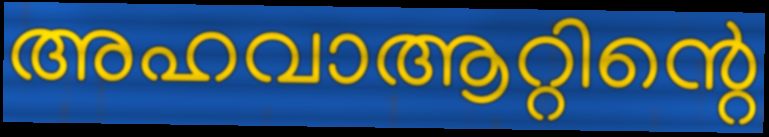
അഹവാആറ്റിന്റെ